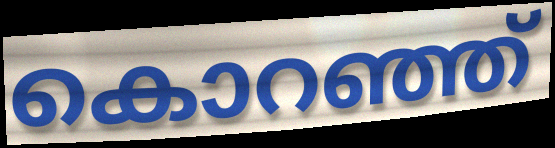
കൊറഞ്ഞ്